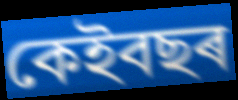
কেইবছৰ